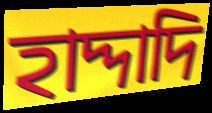
হাদ্দাদি